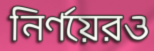
নির্ণয়েরও